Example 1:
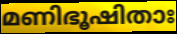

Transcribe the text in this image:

മണിഭൂഷിതാഃ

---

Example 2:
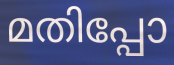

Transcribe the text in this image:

മതിപ്പോ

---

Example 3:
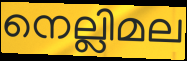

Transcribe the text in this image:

നെല്ലിമല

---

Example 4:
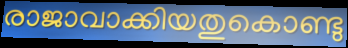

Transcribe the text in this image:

രാജാവാക്കിയതുകൊണ്ടു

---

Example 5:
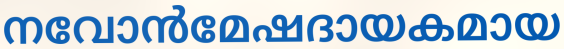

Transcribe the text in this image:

നവോൻമേഷദായകമായ